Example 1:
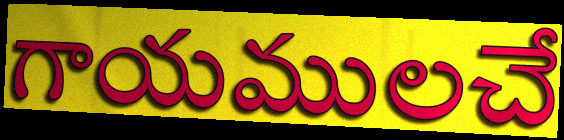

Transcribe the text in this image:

గాయములచే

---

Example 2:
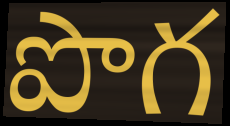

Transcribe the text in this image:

పొగ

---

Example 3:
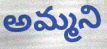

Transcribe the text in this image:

అమ్మని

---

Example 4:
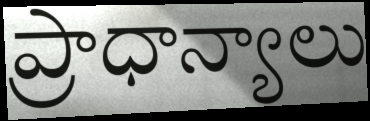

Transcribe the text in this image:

ప్రాధాన్యాలు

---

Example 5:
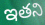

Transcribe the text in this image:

ఇతని